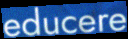
educere